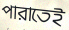
পারাতেই